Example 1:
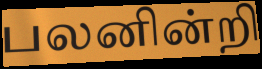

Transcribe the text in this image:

பலனின்றி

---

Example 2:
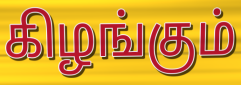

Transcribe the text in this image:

கிழங்கும்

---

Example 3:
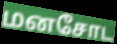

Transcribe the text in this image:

மனசோட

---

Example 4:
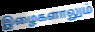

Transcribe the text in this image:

இழைகளாலும்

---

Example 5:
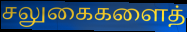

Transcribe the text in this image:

சலுகைகளைத்